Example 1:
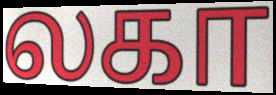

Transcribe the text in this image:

லகா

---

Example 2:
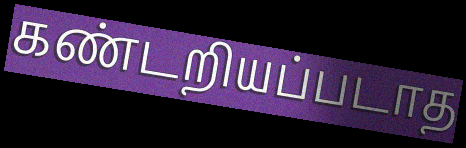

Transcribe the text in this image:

கண்டறியப்படாத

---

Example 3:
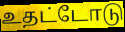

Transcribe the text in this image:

உதட்டோடு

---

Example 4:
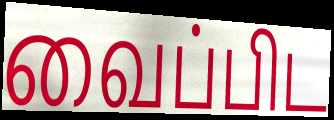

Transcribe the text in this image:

வைப்பிட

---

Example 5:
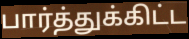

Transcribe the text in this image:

பார்த்துக்கிட்ட